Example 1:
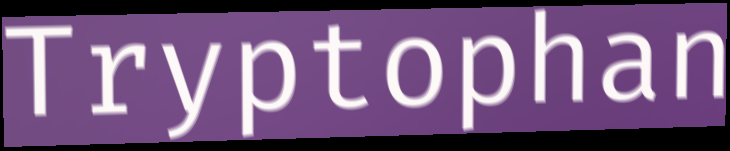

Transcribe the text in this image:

Tryptophan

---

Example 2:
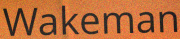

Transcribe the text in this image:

Wakeman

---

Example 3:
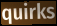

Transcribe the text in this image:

quirks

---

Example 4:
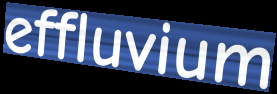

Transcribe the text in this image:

effluvium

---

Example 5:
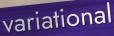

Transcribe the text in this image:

variational